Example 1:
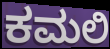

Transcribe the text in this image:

ಕಮಲಿ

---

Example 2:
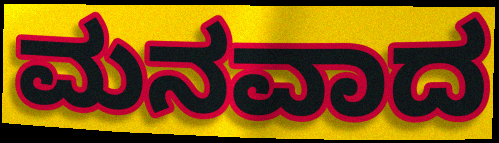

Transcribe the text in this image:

ಮನವಾದ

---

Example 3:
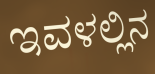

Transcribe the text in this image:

ಇವಳಲ್ಲಿನ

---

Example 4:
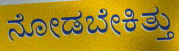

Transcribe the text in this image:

ನೋಡಬೇಕಿತ್ತು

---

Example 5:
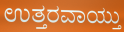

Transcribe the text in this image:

ಉತ್ತರವಾಯ್ತು